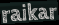
raikar